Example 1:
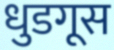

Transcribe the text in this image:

धुडगूस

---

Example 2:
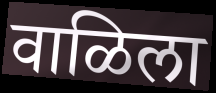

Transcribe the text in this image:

वाळिला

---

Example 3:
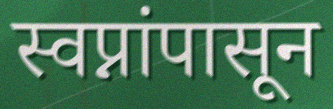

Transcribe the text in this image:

स्वप्नांपासून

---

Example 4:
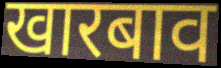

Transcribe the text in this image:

खारबाव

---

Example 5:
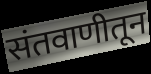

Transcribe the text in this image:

संतवाणीतून